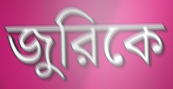
জুরিকে